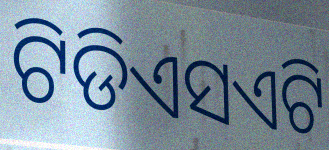
ଟିଡିଏସଏଟି